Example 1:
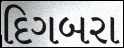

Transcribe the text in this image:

દિગબરા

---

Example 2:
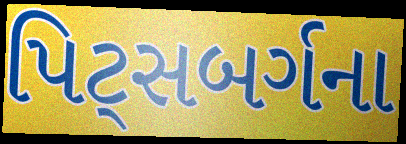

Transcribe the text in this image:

પિટ્સબર્ગના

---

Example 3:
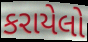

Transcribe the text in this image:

કરાયેલો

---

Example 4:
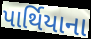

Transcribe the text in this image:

પાર્થિયાના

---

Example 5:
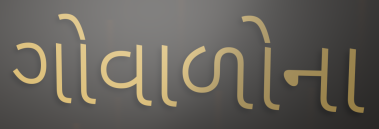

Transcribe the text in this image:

ગોવાળોના